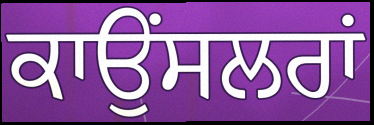
ਕਾਉਂਸਲਰਾਂ